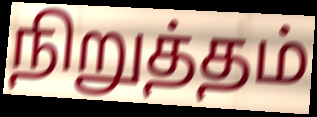
நிறுத்தம்